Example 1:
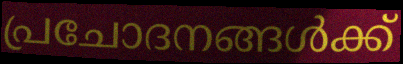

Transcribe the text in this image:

പ്രചോദനങ്ങൾക്ക്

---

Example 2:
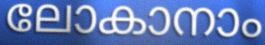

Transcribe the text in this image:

ലോകാനാം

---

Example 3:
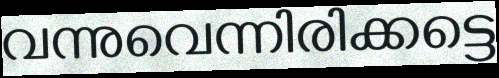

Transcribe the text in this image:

വന്നുവെന്നിരിക്കട്ടെ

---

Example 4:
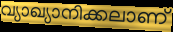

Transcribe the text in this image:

വ്യാഖ്യാനിക്കലാണ്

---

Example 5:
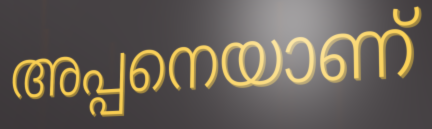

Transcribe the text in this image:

അപ്പനെയാണ്